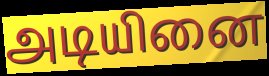
அடியினை